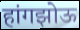
हांगझोऊ